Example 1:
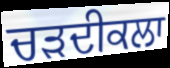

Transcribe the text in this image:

ਚੜਦੀਕਲਾ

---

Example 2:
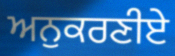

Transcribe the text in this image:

ਅਨੁਕਰਣੀਏ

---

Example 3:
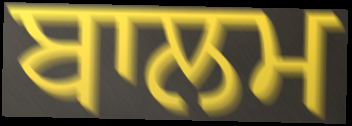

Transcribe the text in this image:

ਬਾਲਮ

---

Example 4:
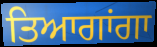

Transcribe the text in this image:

ਤਿਆਗਾਂਗਾ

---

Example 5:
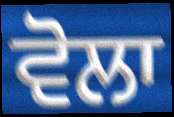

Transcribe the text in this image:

ਵੋਲਾ